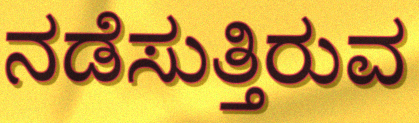
ನಡೆಸುತ್ತಿರುವ